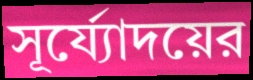
সূর্য্যোদয়ের